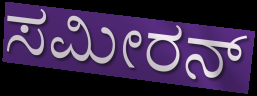
ಸಮೀರನ್